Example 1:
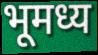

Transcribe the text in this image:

भूमध्य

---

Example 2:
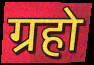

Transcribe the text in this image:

ग्रहो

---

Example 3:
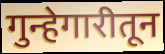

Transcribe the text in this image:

गुन्हेगारीतून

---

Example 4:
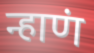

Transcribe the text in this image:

न्हाणं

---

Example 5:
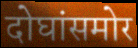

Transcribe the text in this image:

दोघांसमोर